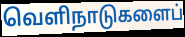
வெளிநாடுகளைப்